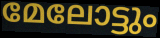
മേലോട്ടും